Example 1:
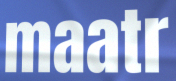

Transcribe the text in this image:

maatr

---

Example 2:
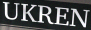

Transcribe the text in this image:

UKREN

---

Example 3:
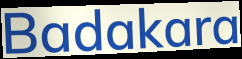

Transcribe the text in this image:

Badakara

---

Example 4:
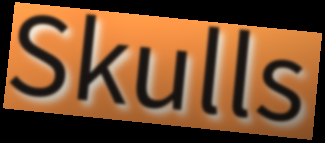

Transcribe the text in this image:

Skulls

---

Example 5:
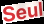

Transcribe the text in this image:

Seul